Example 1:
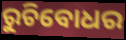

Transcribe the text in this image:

ରୁଚିବୋଧର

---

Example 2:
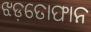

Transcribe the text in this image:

ଝଡ଼ତୋଫାନ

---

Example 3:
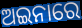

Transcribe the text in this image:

ଅଇନାରେ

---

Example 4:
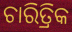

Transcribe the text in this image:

ଚାରିତ୍ରିକ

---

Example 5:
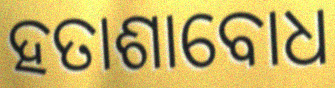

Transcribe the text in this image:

ହତାଶାବୋଧ